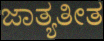
ಜಾತ್ಯತೀತ